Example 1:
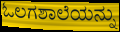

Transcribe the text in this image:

ಓಲಗಶಾಲೆಯನ್ನು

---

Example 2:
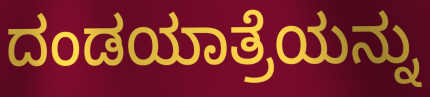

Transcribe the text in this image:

ದಂಡಯಾತ್ರೆಯನ್ನು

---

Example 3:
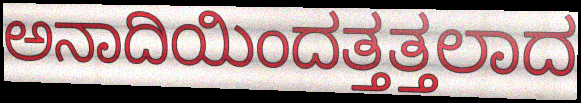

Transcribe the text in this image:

ಅನಾದಿಯಿಂದತ್ತತ್ತಲಾದ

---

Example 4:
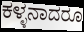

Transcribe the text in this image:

ಕಳ್ಳನಾದರೂ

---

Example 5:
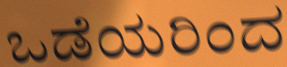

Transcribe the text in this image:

ಒಡೆಯರಿಂದ